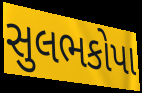
સુલભકોપા